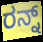
ರನ್ನ್